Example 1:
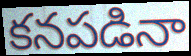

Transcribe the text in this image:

కనపడినా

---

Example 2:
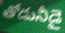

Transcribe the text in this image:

తోడునీడై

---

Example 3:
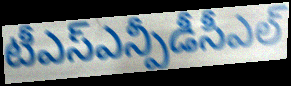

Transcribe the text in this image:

టీఎస్ఎన్పీడీసీఎల్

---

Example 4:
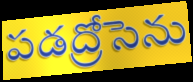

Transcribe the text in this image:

పడద్రోసెను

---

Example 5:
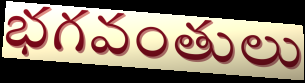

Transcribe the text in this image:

భగవంతులు